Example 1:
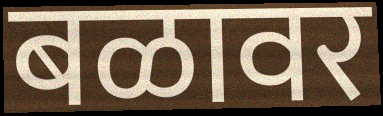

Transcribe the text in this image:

बळावर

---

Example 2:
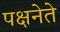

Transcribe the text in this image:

पक्षनेते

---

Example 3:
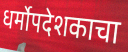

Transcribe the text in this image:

धर्मोपदेशकाचा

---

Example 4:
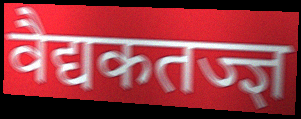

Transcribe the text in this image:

वैद्यकतज्ज्ञ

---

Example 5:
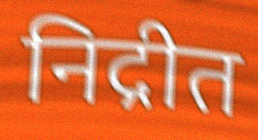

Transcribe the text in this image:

निद्रीत